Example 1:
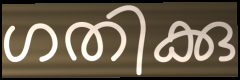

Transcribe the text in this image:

ഗതിക്കു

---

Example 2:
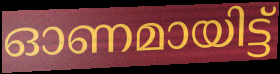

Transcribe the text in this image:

ഓണമായിട്ട്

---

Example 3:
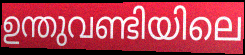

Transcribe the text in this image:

ഉന്തുവണ്ടിയിലെ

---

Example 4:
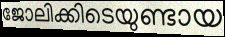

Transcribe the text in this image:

ജോലിക്കിടെയുണ്ടായ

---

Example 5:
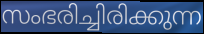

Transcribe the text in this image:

സംഭരിച്ചിരിക്കുന്ന